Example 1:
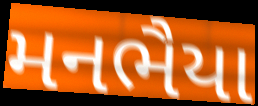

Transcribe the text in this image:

મનભૈયા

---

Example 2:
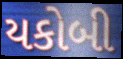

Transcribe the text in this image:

યકોબી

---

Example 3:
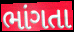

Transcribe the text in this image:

ભાંગતા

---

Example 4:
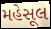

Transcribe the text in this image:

મહેસૂલ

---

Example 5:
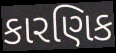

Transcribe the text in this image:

કારણિક